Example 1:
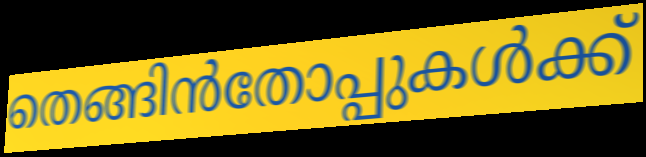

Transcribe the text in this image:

തെങ്ങിൻതോപ്പുകൾക്ക്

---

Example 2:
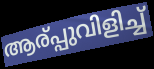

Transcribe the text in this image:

ആര്പ്പുവിളിച്ച്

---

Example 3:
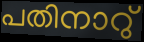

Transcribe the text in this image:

പതിനാറു്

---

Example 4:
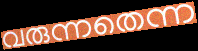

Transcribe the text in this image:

വരുന്നതെന്ന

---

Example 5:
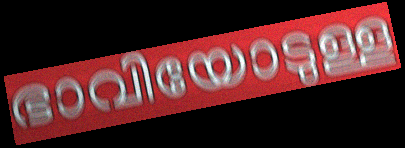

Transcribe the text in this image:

ഭാവിയോടുള്ള